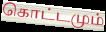
கொட்டமும்